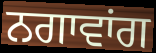
ਨਗਾਵਾਂਗ